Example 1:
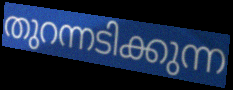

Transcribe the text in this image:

തുറന്നടിക്കുന്ന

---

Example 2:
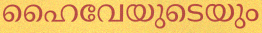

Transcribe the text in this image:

ഹൈവേയുടെയും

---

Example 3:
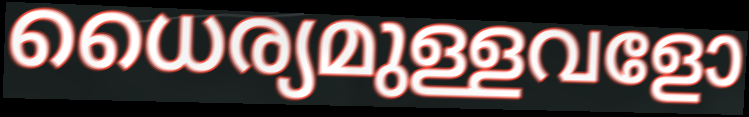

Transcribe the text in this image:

ധൈര്യമുള്ളവളോ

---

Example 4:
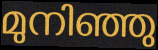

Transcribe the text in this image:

മുനിഞ്ഞു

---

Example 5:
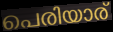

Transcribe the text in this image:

പെരിയാര്